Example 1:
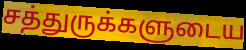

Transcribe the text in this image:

சத்துருக்களுடைய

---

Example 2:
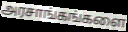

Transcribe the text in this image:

அரசாங்கங்களை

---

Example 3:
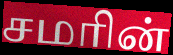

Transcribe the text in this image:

சமரின்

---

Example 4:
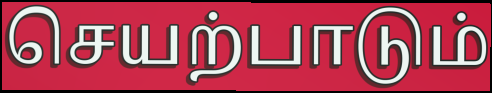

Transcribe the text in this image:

செயற்பாடும்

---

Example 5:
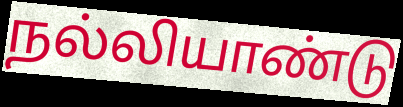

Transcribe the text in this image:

நல்லியாண்டு